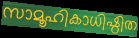
സാമൂഹികാധിഷ്ഠിത